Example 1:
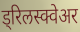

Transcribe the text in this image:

ड्रिलस्क्वेअर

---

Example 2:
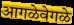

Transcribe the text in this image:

आगळेवेगळे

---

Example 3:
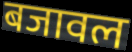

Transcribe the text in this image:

बजावल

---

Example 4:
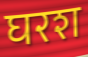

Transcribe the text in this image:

घरश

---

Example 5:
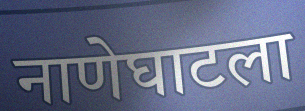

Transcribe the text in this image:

नाणेघाटला